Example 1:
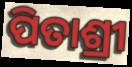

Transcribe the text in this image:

ପିତାଶ୍ରୀ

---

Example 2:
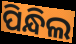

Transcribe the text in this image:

ପିନ୍ଧିଲ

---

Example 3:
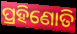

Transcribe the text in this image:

ପ୍ରହିଣୋତି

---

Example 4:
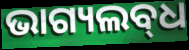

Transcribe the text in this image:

ଭାଗ୍ୟଲବ୍‌ଧ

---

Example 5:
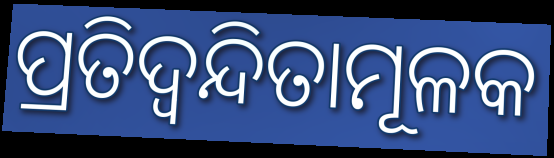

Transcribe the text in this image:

ପ୍ରତିଦ୍ୱନ୍ଦିତାମୂଳକ